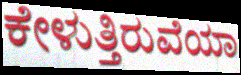
ಕೇಳುತ್ತಿರುವೆಯಾ